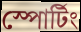
স্পোর্টিং